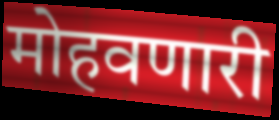
मोहवणारी